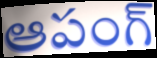
ఆపంగ్